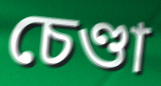
চেণ্ডা